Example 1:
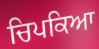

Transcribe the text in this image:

ਚਿਪਕਿਆ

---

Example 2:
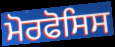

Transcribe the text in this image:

ਮੋਰਫੋਸਿਸ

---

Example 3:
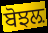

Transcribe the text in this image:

ਬੋਝਲ਼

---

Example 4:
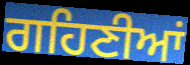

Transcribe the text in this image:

ਗਹਿਣੀਆਂ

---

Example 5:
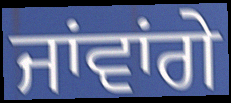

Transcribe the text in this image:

ਜਾਂਵਾਂਗੇ